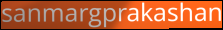
sanmargprakashan